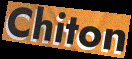
Chiton